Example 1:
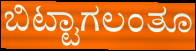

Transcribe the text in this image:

ಬಿಟ್ಟಾಗಲಂತೂ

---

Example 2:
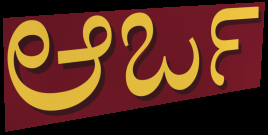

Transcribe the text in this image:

ಆರ್ಒ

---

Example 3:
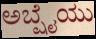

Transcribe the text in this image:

ಅಬ್ಷೈಯು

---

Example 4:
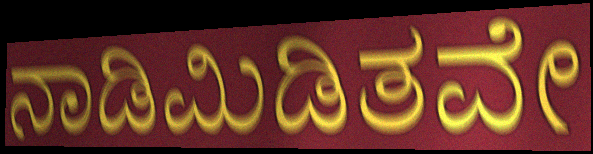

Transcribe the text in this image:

ನಾಡಿಮಿಡಿತವೇ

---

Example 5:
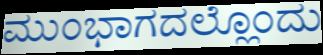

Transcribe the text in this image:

ಮುಂಭಾಗದಲ್ಲೊಂದು